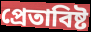
প্রেতাবিষ্ট